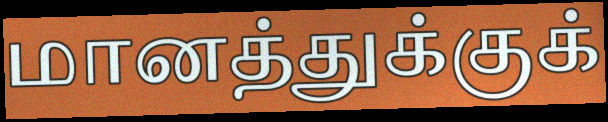
மானத்துக்குக்